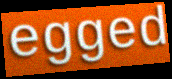
egged